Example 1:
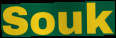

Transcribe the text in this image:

Souk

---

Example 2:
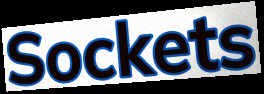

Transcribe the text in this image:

Sockets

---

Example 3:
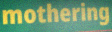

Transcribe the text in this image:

mothering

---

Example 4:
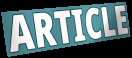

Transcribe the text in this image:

ARTICLE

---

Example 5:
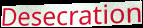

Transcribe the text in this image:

Desecration